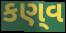
કણ્‌વ